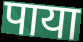
पाया